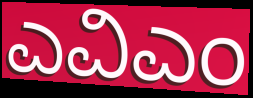
ಎವಿಎಂ